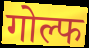
गोल्फ